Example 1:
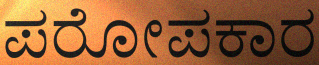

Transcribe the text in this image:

ಪರೋಪಕಾರ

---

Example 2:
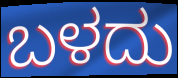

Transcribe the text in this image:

ಬಳದು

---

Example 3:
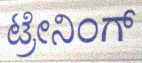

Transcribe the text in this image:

ಟ್ರೇನಿಂಗ್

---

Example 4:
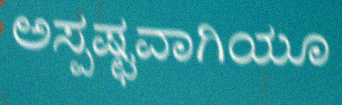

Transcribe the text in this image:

ಅಸ್ಪಷ್ಟವಾಗಿಯೂ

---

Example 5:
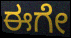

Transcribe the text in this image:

ಈಗೇ